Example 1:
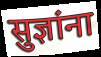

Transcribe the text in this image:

सुज्ञांना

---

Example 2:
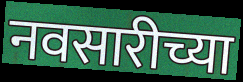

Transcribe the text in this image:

नवसारीच्या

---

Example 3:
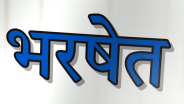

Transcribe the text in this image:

भरषेत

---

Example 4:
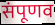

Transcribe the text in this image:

संपूणव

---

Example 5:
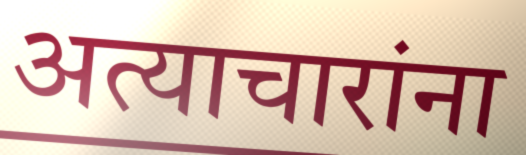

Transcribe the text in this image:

अत्याचारांना